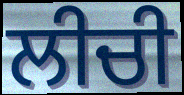
ਲੀਚੀ